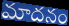
మాదనం